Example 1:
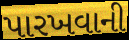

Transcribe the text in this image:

પારખવાની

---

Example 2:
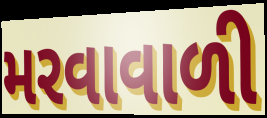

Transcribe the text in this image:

મરવાવાળી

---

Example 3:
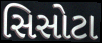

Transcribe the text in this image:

સિસોટા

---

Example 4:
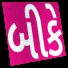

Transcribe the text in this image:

બીકે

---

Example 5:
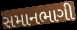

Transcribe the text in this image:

સમાનભાગી